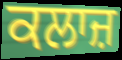
ਕਲਾਜ਼